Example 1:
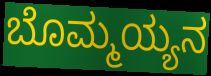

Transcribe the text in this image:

ಬೊಮ್ಮಯ್ಯನ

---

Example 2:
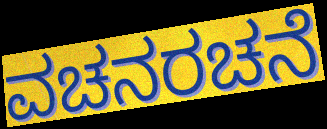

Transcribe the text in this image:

ವಚನರಚನೆ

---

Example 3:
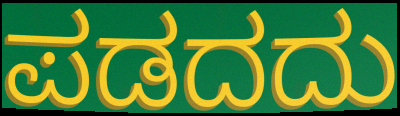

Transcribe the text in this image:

ಪಡದದು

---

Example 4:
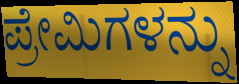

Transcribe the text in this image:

ಪ್ರೇಮಿಗಳನ್ನು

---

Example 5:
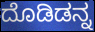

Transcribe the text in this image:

ದೊಡಿಡನ್ನ